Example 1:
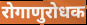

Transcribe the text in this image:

रोगाणुरोधक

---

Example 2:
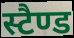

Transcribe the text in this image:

स्टैण्ड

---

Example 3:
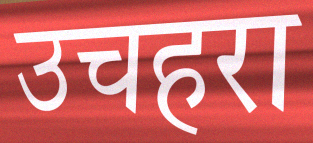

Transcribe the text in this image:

उचहरा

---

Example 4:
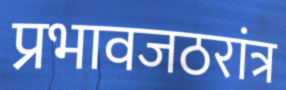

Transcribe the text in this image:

प्रभावजठरांत्र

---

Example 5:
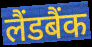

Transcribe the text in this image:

लैंडबैंक